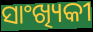
ସାଂଖ୍ୟିକୀ